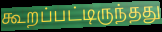
கூறப்பட்டிருந்தது